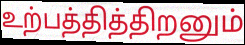
உற்பத்தித்திறனும்